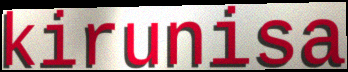
kirunisa